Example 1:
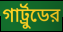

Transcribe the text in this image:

গার্ট্রুডের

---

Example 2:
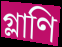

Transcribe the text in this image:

গ্লাণি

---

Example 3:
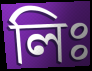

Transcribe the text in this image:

লিঃ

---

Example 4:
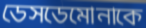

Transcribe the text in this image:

ডেসডেমোনাকে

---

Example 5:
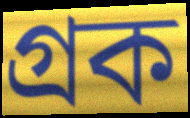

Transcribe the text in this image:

গ্রক